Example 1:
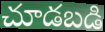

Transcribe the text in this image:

చూడబడి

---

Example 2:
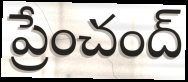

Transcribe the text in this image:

ప్రేంచంద్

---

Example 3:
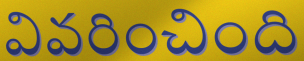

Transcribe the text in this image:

వివరించింది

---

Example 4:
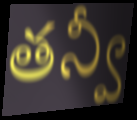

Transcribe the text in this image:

తన్వీ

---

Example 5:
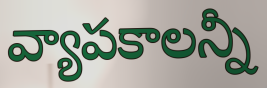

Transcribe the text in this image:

వ్యాపకాలన్నీ